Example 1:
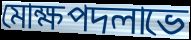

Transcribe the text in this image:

মোক্ষপদলাভে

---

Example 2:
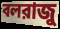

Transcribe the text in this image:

বলরাজু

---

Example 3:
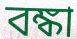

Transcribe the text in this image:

বঙ্কা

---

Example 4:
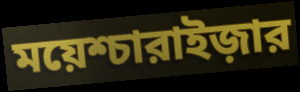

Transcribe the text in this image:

ময়েশ্চারাইজ়ার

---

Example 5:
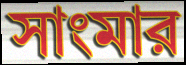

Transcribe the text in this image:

সাংমার